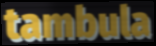
tambula